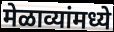
मेळाव्यांमध्ये